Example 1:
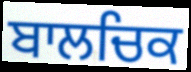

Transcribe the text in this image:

ਬਾਲਚਿਕ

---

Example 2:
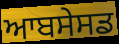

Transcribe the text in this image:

ਆਬਸੇਸਡ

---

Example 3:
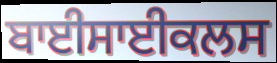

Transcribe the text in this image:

ਬਾਈਸਾਈਕਲਸ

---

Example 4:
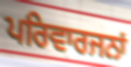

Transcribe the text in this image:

ਪਰਿਵਾਰਜਨਾਂ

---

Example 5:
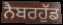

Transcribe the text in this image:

ਨੈਬਰਹੁੱਡ